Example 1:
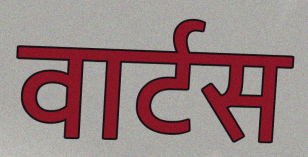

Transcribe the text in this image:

वार्टस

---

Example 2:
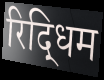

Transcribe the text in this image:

रिद्धिम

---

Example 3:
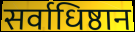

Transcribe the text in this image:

सर्वाधिष्ठान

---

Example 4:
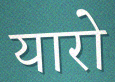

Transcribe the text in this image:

यारो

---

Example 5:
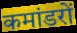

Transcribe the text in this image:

कमांडरों